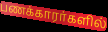
பணக்காரர்களில்